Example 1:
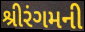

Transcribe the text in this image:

શ્રીરંગમની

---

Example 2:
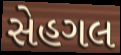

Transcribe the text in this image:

સેહગલ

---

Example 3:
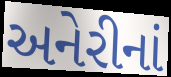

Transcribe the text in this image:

અનેરીનાં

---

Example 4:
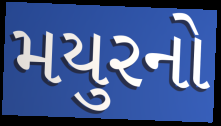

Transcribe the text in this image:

મયુરનો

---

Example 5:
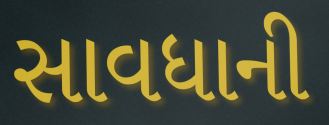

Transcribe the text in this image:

સાવધાની